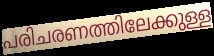
പരിചരണത്തിലേക്കുള്ള